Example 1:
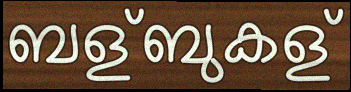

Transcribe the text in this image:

ബള്ബുകള്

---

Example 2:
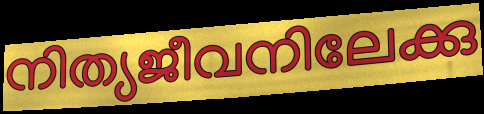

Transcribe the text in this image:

നിത്യജീവനിലേക്കു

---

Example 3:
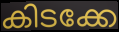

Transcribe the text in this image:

കിടക്കേ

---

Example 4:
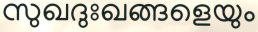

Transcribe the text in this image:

സുഖദുഃഖങ്ങളെയും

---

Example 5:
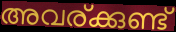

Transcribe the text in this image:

അവര്ക്കുണ്ട്